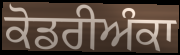
ਕੋਡਰੀਅੰਕਾ